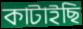
কাটাইছি